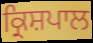
ਕ੍ਰਿਸ਼ਪਾਲ